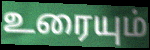
உரையும்